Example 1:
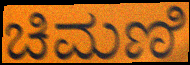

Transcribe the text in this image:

ಚಿಮಣಿ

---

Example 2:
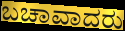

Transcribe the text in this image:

ಬಚಾವಾದರು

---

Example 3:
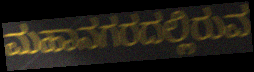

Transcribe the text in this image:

ಮಹಾನಗರದಲ್ಲಿರುವ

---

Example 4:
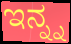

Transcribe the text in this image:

ಇನ್ನ್ನ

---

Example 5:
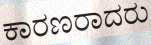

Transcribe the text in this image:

ಕಾರಣರಾದರು